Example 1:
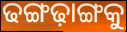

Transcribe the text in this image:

ଢଙ୍ଗଢ଼ାଙ୍ଗକୁ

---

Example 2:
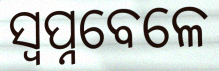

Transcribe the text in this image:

ସ୍ଵପ୍ନବେଳେ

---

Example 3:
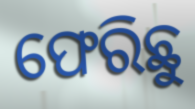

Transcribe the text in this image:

ଫେରିଛୁ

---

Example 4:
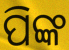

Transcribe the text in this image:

ପିଙ୍କ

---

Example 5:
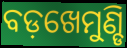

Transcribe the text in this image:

ବଡ଼ଖେମୁଣ୍ଡି